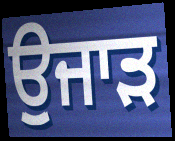
ਉੁਜਾੜ